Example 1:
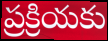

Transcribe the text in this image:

ప్రక్రియకు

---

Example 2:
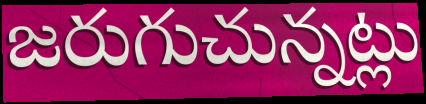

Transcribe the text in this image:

జరుగుచున్నట్లు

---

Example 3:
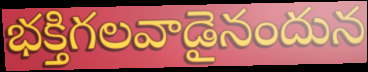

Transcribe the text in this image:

భక్తిగలవాడైనందున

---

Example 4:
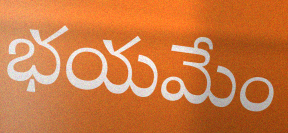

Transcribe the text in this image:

భయమేం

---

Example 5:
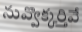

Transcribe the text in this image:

నువ్వొక్కర్తివే